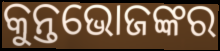
କୁନ୍ତଭୋଜଙ୍କର